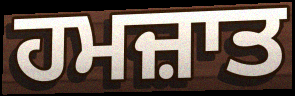
ਹਮਜ਼ਾਤ